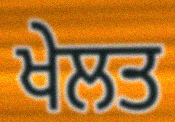
ਖੇਲਤ